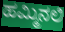
ಹಮ್ಮಿನಲಿ